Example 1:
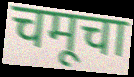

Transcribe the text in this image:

चमूचा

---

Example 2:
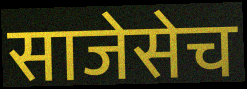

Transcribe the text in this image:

साजेसेच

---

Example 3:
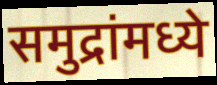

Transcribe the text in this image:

समुद्रांमध्ये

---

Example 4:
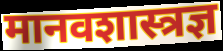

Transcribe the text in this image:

मानवशास्त्रज्ञ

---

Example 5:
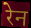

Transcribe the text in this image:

रेन